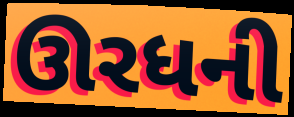
ઊરધની